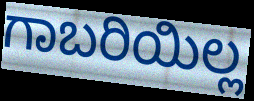
ಗಾಬರಿಯಿಲ್ಲ